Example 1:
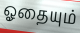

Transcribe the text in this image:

ஓதையும்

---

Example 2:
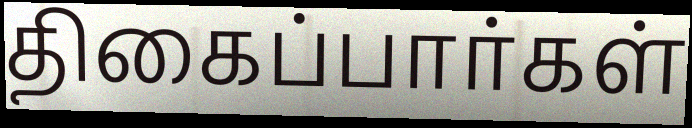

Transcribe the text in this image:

திகைப்பார்கள்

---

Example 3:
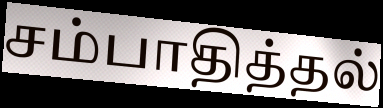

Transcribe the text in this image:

சம்பாதித்தல்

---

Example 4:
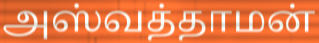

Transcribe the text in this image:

அஸ்வத்தாமன்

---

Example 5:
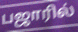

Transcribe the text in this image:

பஜாரில்